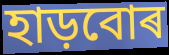
হাড়বোৰ